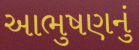
આભુષણનું